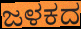
ಜಳಕದ